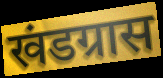
खंडग्रास